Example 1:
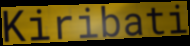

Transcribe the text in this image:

Kiribati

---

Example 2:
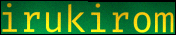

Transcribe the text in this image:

irukirom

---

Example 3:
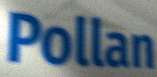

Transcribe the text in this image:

Pollan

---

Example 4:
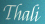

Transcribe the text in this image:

Thali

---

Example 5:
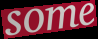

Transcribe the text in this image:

some